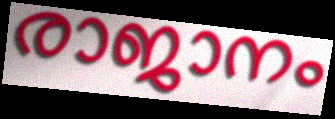
രാജാനം